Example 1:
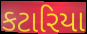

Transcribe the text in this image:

કટારિયા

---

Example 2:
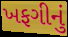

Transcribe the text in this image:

ખફગીનું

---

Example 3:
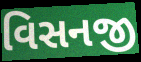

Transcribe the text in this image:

વિસનજી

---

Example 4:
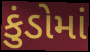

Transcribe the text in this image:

કુંડોમાં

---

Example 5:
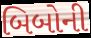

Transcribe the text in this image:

બિબોની